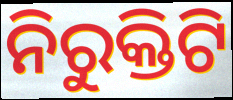
ନିରୁକ୍ତିଟି